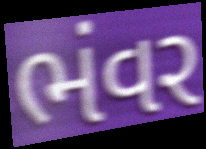
ભંવર